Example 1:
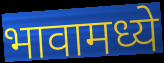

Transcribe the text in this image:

भावामध्ये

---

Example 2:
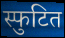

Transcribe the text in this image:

स्फुटित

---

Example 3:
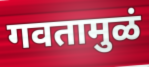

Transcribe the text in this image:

गवतामुळं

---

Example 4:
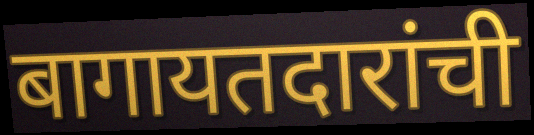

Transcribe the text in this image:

बागायतदारांची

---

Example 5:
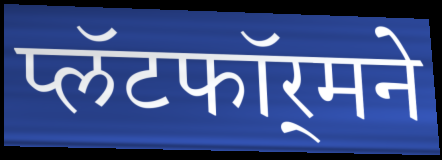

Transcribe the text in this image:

प्लॅटफॉर्मने